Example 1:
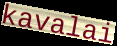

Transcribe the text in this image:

kavalai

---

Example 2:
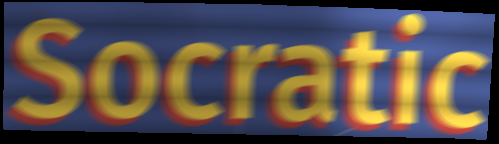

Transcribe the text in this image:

Socratic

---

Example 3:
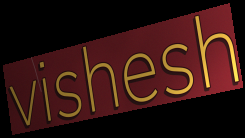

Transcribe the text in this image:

vishesh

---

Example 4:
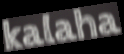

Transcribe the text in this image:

kalaha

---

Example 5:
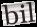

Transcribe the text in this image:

bil